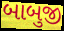
બાબુજી